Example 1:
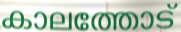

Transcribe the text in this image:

കാലത്തോട്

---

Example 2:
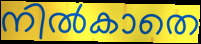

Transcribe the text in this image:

നിൽകാതെ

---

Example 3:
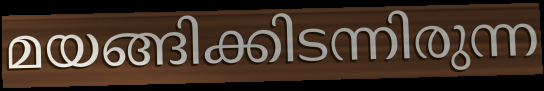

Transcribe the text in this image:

മയങ്ങിക്കിടന്നിരുന്ന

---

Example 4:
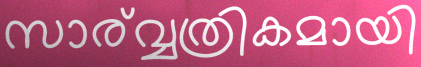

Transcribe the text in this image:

സാര്വ്വത്രികമായി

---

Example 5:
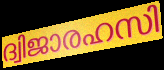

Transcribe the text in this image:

ദ്വിജാരഹസി